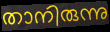
താനിരുന്നു